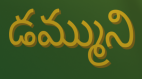
డమ్ముని